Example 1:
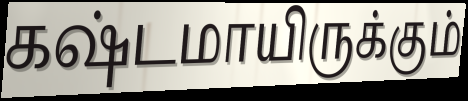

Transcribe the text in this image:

கஷ்டமாயிருக்கும்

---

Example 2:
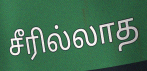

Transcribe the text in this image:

சீரில்லாத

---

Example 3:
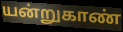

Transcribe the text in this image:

யன்றுகாண்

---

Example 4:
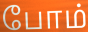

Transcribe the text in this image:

போம்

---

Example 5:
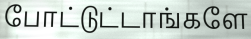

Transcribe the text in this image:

போட்டுட்டாங்களே